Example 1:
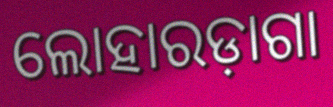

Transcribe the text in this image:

ଲୋହାରଡ଼ାଗା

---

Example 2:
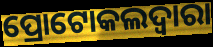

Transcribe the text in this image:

ପ୍ରୋଟୋକଲଦ୍ୱାରା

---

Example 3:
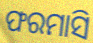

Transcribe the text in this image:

ଫରମାସି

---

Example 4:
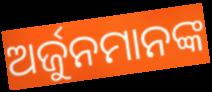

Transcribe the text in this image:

ଅର୍ଜୁନମାନଙ୍କ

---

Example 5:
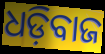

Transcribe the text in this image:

ଧଡ଼ିବାଜ